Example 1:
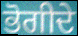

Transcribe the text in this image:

ਭੋਗੀਦੇ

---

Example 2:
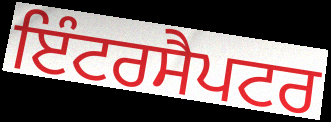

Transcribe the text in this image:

ਇੰਟਰਸੈਪਟਰ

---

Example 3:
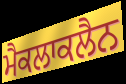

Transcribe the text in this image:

ਮੈਕਲਾਕਲੈਨ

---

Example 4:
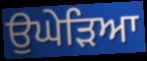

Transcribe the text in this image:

ਉਘੇੜਿਆ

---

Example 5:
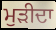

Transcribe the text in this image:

ਮੁੜੀਦਾ